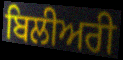
ਬਿਲੀਅਰੀ